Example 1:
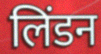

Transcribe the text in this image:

लिंडन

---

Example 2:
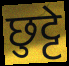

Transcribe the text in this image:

छुट्टे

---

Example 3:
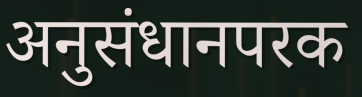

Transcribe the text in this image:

अनुसंधानपरक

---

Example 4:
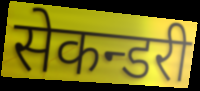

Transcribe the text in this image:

सेकन्डरी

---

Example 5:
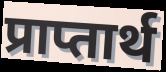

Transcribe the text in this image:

प्राप्तार्थ